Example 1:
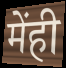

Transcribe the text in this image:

मेंही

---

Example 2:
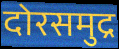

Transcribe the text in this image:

दोरसमुद्र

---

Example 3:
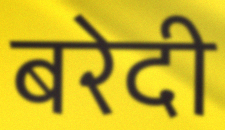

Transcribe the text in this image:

बरेदी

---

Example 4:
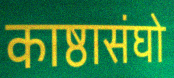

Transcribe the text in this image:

काष्ठासंघो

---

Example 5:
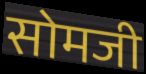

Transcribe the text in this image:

सोमजी